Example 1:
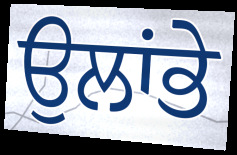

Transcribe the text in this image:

ਉਲਾਂਭੇ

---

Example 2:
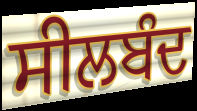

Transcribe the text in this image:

ਸੀਲਬੰਦ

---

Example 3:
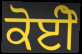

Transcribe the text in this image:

ਕੋਈੋ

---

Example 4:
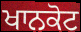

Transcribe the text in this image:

ਖਾਨਕੋਟ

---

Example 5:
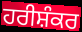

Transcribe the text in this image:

ਹਰੀਸ਼ੰਕਰ